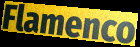
Flamenco